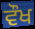
ਵੌਖ